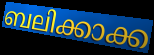
ബലിക്കാക്ക